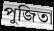
পুজিতা